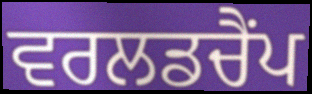
ਵਰਲਡਚੈਂਪ